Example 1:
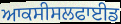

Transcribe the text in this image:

ਆਕਸੀਸਲਫਾਈਡ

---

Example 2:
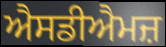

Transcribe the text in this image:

ਐਸਡੀਐਮਜ਼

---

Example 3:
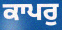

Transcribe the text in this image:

ਕਾਪਰੁ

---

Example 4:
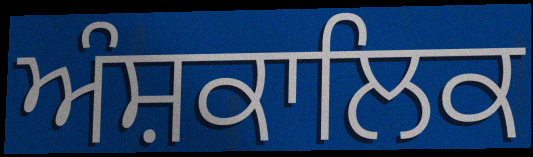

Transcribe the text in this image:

ਅੰਸ਼ਕਾਲਿਕ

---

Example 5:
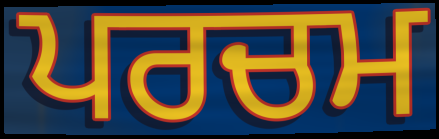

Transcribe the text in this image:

ਪਰਚਮ